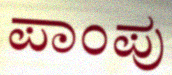
ಪಾಂಪು